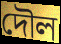
দৌল